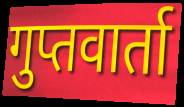
गुप्तवार्ता